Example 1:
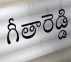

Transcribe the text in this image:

గీతారెడ్డి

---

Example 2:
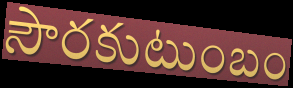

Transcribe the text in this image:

సౌరకుటుంబం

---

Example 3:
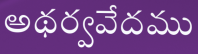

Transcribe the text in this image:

అథర్వవేదము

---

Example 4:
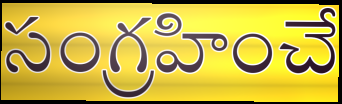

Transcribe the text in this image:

సంగ్రహించే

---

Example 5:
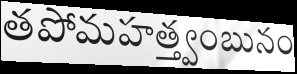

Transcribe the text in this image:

తపోమహత్త్వంబునం